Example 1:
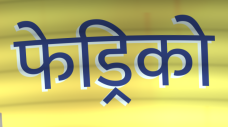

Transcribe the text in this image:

फेड्रिको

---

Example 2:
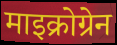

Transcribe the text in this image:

माइक्रोग्रेन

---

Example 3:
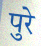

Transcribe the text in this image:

पुरे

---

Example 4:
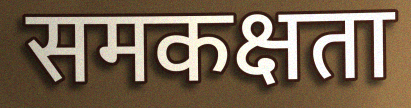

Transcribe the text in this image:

समकक्षता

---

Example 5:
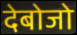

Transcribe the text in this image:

देबोजो